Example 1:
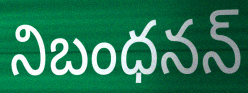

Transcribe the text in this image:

నిబంధనన్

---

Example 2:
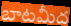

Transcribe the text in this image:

బాటమీద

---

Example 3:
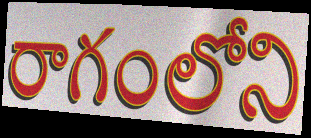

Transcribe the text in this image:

రాగంలోని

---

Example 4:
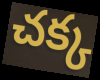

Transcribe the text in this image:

చక్క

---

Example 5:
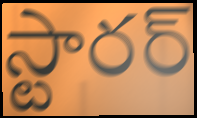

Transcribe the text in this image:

స్టారర్